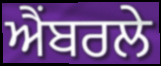
ਐਂਬਰਲੇ